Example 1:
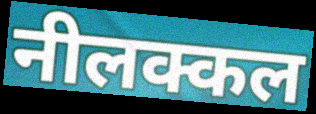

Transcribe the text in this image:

नीलक्कल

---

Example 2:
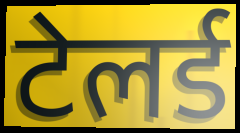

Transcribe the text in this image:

टेलर्ड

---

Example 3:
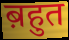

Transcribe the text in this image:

ब़हुत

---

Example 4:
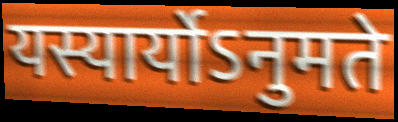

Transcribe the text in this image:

यस्यार्योऽनुमते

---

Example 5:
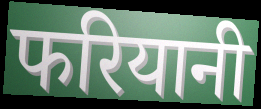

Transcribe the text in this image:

फरियानी